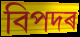
বিপদৰ